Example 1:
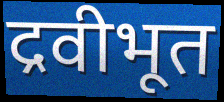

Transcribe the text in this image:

द्रवीभूत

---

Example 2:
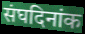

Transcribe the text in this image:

संघदिनांक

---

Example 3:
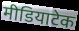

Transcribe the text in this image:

मीडियाटेक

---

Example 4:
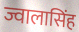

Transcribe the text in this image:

ज्वालासिंह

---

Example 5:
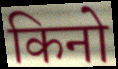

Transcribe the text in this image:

किनो